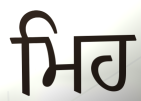
ਮਿਹ